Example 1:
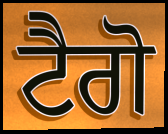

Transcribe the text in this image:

ਟੈਗੋ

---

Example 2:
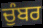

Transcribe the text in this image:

ਚੁੰਬਰ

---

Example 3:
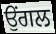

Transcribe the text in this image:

ਉੰਗਲ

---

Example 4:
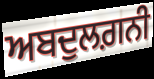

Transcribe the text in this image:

ਅਬਦੁਲਗ਼ਨੀ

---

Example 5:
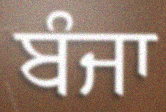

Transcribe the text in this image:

ਬੰਜਾ